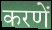
करणें